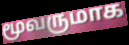
மூவருமாக